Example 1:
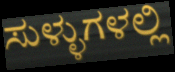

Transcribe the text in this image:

ಸುಳ್ಳುಗಳಲ್ಲಿ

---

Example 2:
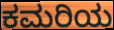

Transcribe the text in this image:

ಕಮರಿಯ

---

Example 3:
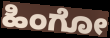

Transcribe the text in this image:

ಹಿಂಗೋ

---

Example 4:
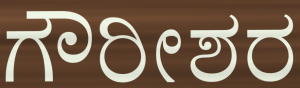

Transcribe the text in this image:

ಗೌರೀಶರ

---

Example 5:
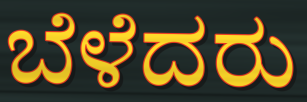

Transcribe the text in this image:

ಬೆಳೆದರು